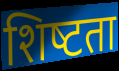
शिष्‍टता